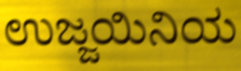
ಉಜ್ಜಯಿನಿಯ